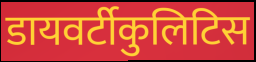
डायवर्टीकुलिटिस